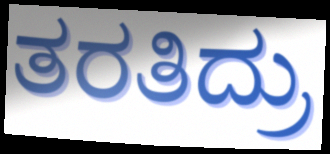
ತರತಿದ್ರು